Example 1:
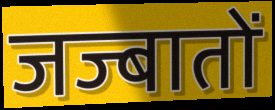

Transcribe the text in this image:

जज्बातों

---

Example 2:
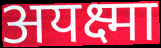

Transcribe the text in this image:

अयक्ष्मा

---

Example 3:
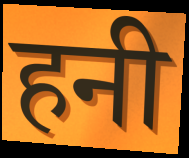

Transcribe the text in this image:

हनी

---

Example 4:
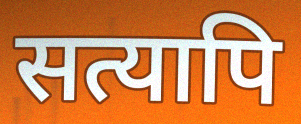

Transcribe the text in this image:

सत्यापि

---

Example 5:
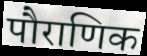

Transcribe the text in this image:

पौराणिक